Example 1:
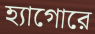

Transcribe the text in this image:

হ্যাগোরে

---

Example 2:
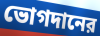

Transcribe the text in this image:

ভোগদানের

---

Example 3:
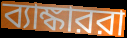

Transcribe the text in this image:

ব্যাঙ্কাররা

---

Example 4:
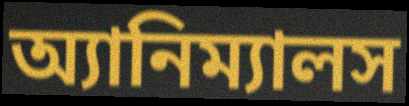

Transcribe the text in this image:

অ্যানিম্যালস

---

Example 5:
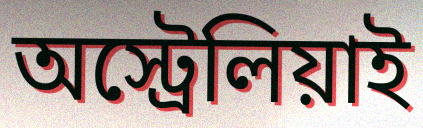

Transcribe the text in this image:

অস্ট্রেলিয়াই